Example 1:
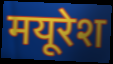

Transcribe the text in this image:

मयूरेश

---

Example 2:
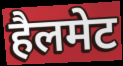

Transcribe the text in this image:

हैलमेट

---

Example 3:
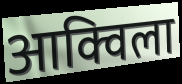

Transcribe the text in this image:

आक्विला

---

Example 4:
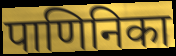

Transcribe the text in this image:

पाणिनिका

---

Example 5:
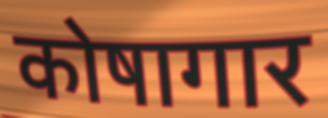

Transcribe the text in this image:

कोषागार